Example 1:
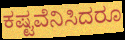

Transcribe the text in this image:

ಕಷ್ಟವೆನಿಸಿದರೂ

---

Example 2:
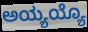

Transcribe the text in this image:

ಅಯ್ಯಯ್ಯೊ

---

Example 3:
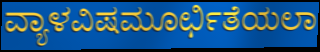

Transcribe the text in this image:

ವ್ಯಾಳವಿಷಮೂರ್ಛಿತೆಯಲಾ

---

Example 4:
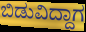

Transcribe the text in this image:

ಬಿಡುವಿದ್ದಾಗ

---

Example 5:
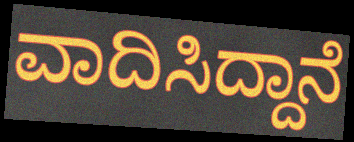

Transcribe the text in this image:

ವಾದಿಸಿದ್ದಾನೆ